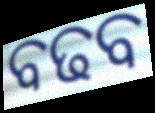
ବଢବ